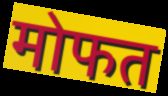
मोफत